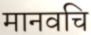
मानवचि